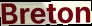
Breton